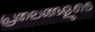
പ്രതലങ്ങളുടെ